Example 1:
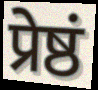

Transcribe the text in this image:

प्रेष्ठं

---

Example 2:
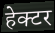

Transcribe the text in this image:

हेक्टर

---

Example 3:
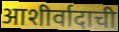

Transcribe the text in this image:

आशीर्वादाची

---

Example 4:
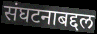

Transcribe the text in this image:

संघटनाबद्दल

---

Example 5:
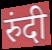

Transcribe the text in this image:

रुंदी